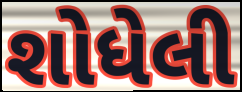
શોધેલી